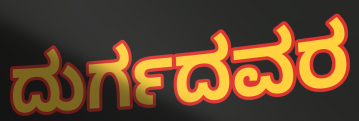
ದುರ್ಗದವರ